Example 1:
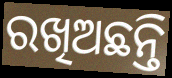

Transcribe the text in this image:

ରଖିଅଛନ୍ତି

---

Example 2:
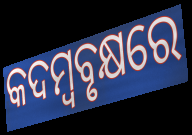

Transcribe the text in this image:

କଦମ୍ୱବୃକ୍ଷରେ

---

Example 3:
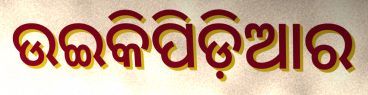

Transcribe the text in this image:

ଉଇକିପିଡ଼ିଆର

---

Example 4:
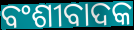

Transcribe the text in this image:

ବଂଶୀବାଦକ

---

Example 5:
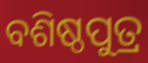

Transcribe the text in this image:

ବଶିଷ୍ଠପୁତ୍ର